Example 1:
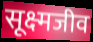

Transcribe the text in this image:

सूक्ष्मजीव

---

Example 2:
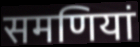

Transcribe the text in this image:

समणियां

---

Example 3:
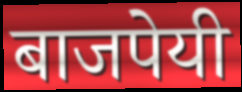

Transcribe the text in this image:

बाजपेयी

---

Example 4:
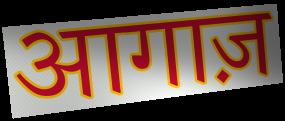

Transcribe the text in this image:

आगाज़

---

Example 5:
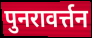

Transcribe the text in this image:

पुनरावर्त्तन